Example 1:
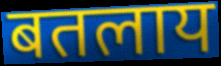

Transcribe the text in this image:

बतलाय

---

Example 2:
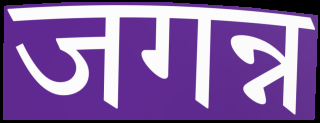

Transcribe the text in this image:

जगन्न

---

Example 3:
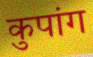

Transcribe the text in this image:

कुपांग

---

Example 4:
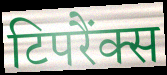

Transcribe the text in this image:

टिपरैंक्स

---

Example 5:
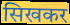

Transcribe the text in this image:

सिखकर